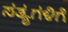
ಸತ್ಯಗಳಿಗೆ